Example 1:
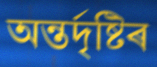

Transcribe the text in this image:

অন্তৰ্দৃষ্টিৰ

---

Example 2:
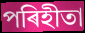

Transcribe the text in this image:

পৰিহীতা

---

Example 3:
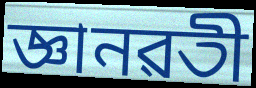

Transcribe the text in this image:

জ্ঞানৱতী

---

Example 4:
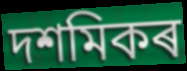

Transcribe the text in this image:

দশমিকৰ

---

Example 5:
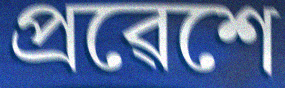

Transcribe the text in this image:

প্ৰৱেশে